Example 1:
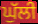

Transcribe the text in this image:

ਘੁੱਲੀ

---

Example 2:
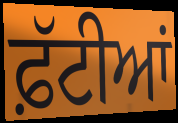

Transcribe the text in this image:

ਫ਼ੱਟੀਆਂ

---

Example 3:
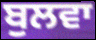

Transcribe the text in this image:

ਬੁਲਵਾ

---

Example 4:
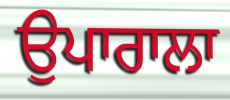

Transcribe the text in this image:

ਉਪਾਰਾਲਾ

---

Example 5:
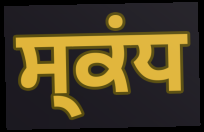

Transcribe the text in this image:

ਸ੍ਕਂਧ